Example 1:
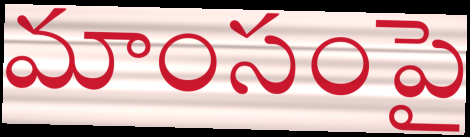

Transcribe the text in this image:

మాంసంపై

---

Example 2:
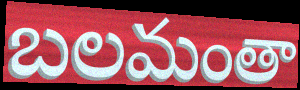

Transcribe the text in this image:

బలమంతా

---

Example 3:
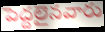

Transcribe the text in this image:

పెద్దలైనవారు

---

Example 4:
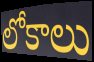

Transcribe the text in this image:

లోకాలు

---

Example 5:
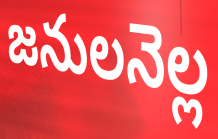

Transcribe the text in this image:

జనులనెల్ల